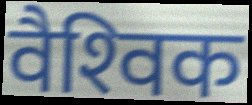
वैश्‍विक